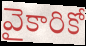
వైకారికో